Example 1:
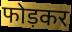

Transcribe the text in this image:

फोड़कर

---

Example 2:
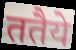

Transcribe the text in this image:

ततैये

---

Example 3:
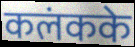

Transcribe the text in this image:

कलंकके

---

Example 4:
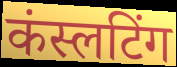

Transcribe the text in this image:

कंस्लटिंग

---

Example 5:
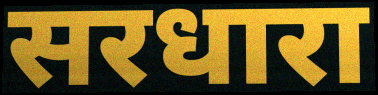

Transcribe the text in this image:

सरधारा